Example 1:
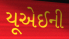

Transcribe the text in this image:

યૂએઈની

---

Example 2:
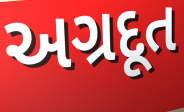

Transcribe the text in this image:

અગ્રદૂત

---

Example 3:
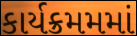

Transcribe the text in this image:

કાર્યક્રમમમાં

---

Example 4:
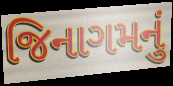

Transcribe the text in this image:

જિનાગમનું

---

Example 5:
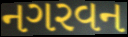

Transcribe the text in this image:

નગરવન